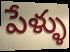
పేళ్ళు